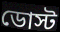
ডোস্ট